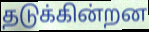
தடுக்கின்றன